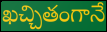
ఖచ్చితంగానే